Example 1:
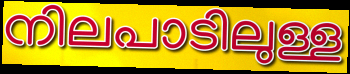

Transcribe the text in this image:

നിലപാടിലുള്ള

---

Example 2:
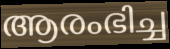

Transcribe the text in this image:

ആരംഭിച്ച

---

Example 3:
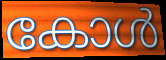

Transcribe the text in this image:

കോൾ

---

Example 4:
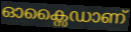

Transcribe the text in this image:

ഓക്സൈഡാണ്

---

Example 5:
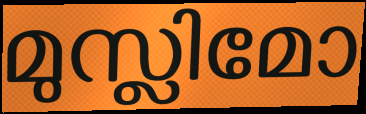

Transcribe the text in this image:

മുസ്ലിമോ